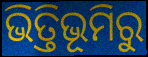
ଭିତ୍ତିଭୂମିରୁ